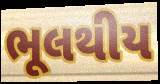
ભૂલથીય